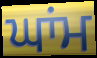
ਘਾਂਮ